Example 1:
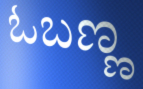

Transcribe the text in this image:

ಓಬಣ್ಣ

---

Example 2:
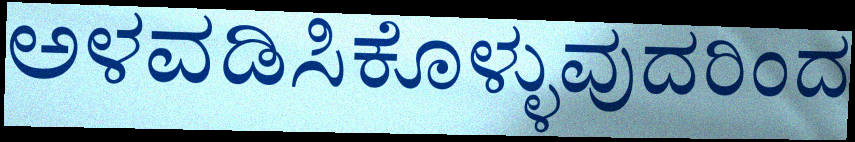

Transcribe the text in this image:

ಅಳವಡಿಸಿಕೊಳ್ಳುವುದರಿಂದ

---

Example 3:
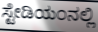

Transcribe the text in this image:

ಸ್ಟೇಡಿಯಂನಲ್ಲಿ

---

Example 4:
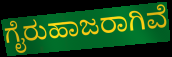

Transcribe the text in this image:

ಗೈರುಹಾಜರಾಗಿವೆ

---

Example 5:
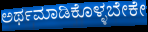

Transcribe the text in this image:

ಅರ್ಥಮಾಡಿಕೊಳ್ಳಬೇಕೇ